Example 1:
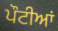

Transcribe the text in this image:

ਪੌਟੀਆਂ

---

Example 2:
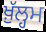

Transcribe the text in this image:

ਖ਼ੁੱਲ੍ਹਮ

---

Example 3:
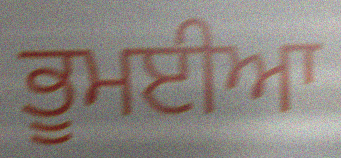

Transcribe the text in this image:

ਭੂਮਈਆ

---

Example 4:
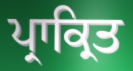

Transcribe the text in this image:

ਪ੍ਰਾਕ੍ਰਿਤ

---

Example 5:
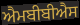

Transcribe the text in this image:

ਐਮਬੀਬੀਐਸ